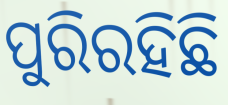
ପୁରିରହିଛି